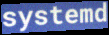
systemd